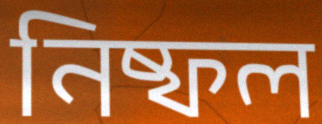
নিষ্ফল